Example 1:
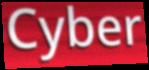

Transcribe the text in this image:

Cyber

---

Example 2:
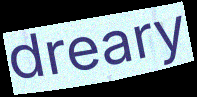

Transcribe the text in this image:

dreary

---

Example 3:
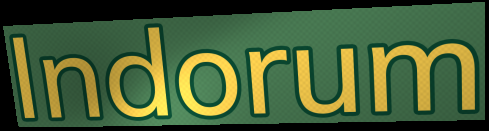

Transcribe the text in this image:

Indorum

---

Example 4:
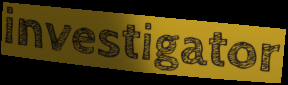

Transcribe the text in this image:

investigator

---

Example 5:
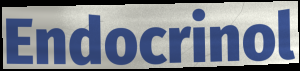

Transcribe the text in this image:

Endocrinol